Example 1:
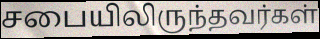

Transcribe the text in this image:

சபையிலிருந்தவர்கள்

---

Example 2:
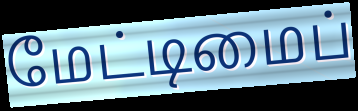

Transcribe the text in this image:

மேட்டிமைப்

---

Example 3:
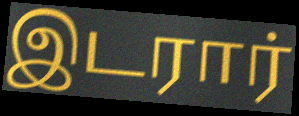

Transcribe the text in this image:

இடரார்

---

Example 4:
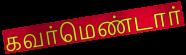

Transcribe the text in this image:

கவர்மெண்டார்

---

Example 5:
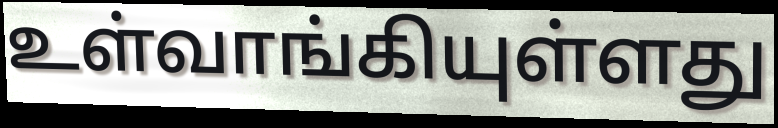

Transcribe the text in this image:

உள்வாங்கியுள்ளது